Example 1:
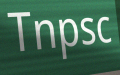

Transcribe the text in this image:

Tnpsc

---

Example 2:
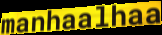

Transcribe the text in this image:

manhaalhaa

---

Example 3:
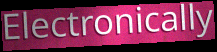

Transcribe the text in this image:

Electronically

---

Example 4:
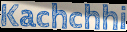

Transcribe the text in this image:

Kachchhi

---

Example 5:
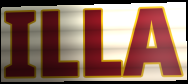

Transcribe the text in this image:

ILLA